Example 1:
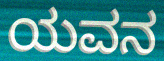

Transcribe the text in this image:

ಯವನ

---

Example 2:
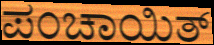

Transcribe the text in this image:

ಪಂಚಾಯಿತ್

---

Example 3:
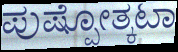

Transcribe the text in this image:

ಪುಷ್ಪೋತ್ಕಟಾ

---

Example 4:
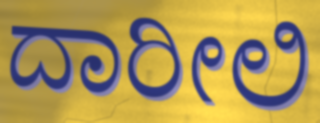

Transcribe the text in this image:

ದಾರೀಲಿ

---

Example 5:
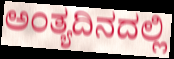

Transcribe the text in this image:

ಅಂತ್ಯದಿನದಲ್ಲಿ